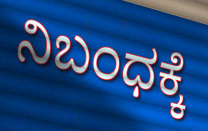
ನಿಬಂಧಕ್ಕೆ